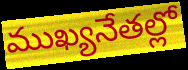
ముఖ్యనేతల్లో